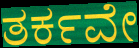
ತರ್ಕವೇ